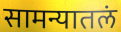
सामन्यातलं